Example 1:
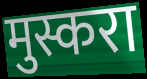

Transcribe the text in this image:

मुस्करा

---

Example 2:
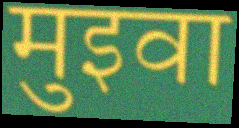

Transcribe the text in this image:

मुइवा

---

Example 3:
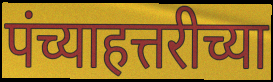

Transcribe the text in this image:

पंच्याहत्तरीच्या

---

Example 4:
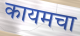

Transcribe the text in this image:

कायमचा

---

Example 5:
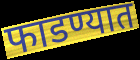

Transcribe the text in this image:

फाडण्यात